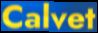
Calvet